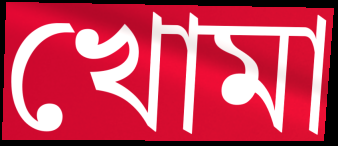
খোমা